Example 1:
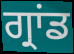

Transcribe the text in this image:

ਗ੍ਰਾਂਡ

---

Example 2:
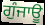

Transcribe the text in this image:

ਗੁੰਜਾਊ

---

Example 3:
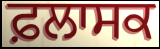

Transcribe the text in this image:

ਫ਼ਲਾਸਕ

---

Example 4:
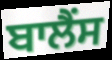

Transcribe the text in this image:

ਬਾਲੈਂਸ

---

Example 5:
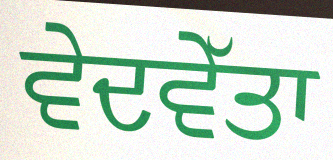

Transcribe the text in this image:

ਵੇਦਵੇੱਤਾ